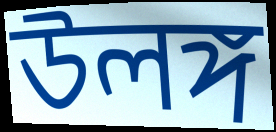
উলঙ্গ